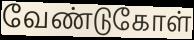
வேண்டுகோள்